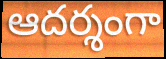
ఆదర్శంగా